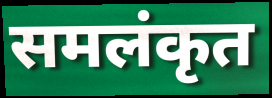
समलंकृत